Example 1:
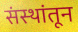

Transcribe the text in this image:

संस्थांतून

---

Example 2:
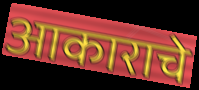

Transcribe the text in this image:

आकाराचे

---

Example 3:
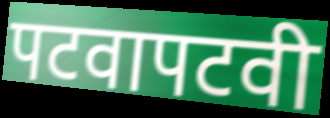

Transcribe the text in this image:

पटवापटवी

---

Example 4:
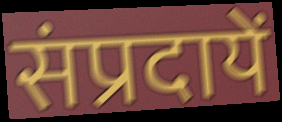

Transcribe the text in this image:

संप्रदायें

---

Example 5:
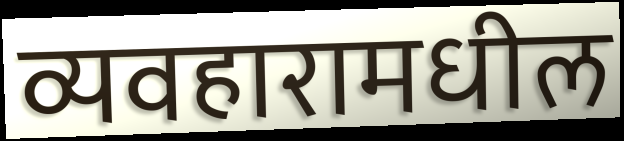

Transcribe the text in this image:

व्यवहारामधील